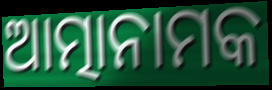
ଆତ୍ମାନାମକ